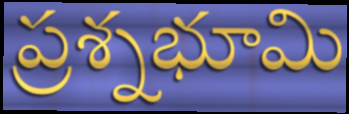
ప్రశ్నభూమి